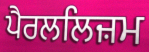
ਪੈਰਲਲਿਜ਼ਮ